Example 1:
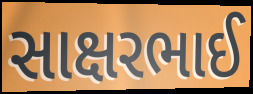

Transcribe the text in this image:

સાક્ષરભાઈ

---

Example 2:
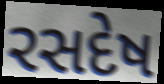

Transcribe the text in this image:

રસદેષ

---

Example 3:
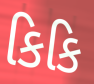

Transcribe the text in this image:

કિકિ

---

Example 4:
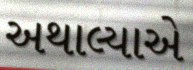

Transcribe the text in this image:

અથાલ્યાએ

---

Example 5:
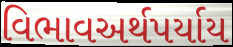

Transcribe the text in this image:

વિભાવઅર્થપર્યાય